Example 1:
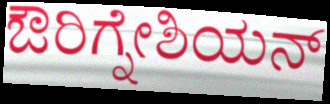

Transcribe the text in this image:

ಔರಿಗ್ನೇಶಿಯನ್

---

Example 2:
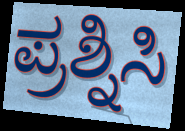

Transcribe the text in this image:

ಪ್ರಶ್ನಿಸಿ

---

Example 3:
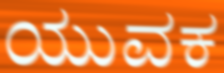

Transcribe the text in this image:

ಯುವಕ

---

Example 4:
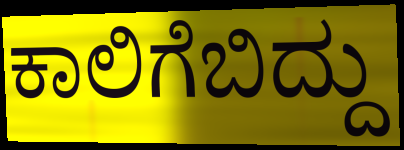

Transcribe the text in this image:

ಕಾಲಿಗೆಬಿದ್ದು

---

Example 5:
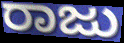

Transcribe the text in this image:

ರಾಜು